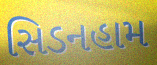
સિડનહામ